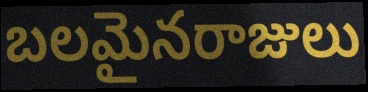
బలమైనరాజులు